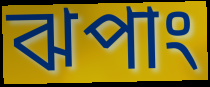
ঝপাং